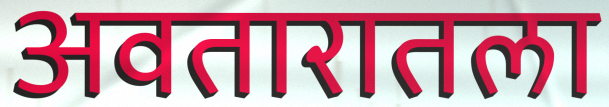
अवतारातला